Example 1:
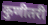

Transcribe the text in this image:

कुणीतरी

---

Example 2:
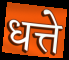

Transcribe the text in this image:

धत्ते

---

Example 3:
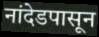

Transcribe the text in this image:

नांदेडपासून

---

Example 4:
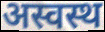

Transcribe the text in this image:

अस्वस्थ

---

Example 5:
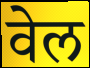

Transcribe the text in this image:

वेल